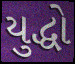
યુદ્ધો